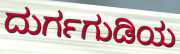
ದುರ್ಗಗುಡಿಯ